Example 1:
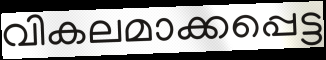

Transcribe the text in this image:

വികലമാക്കപ്പെട്ട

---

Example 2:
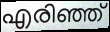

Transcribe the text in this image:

എരിഞ്ഞ്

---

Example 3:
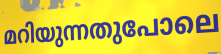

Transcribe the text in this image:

മറിയുന്നതുപോലെ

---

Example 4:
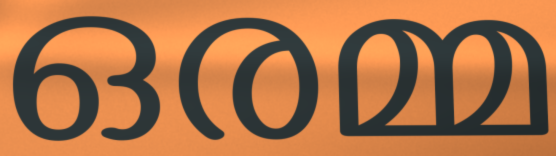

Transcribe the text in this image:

ഒരമ്മ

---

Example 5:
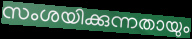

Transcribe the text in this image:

സംശയിക്കുന്നതായും